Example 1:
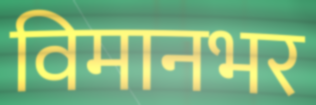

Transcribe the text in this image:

विमानभर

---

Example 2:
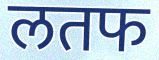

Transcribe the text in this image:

लतफ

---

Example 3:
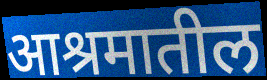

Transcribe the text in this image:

आश्रमातील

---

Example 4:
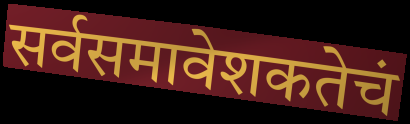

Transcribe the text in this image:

सर्वसमावेशकतेचं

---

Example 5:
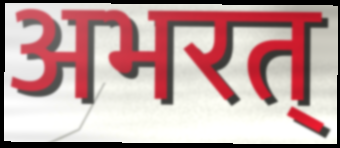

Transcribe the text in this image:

अभरत्